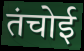
तंचोई